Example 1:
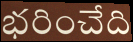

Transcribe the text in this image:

భరించేది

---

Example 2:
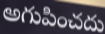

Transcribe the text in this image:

అగుపించదు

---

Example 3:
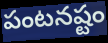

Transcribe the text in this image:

పంటనష్టం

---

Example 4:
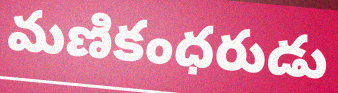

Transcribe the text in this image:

మణికంధరుడు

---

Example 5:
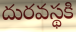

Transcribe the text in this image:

దురవస్థకి